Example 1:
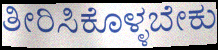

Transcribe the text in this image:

ತೀರಿಸಿಕೊಳ್ಳಬೇಕು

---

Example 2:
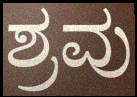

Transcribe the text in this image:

ಶ್ರವು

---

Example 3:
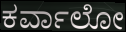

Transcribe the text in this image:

ಕರ್ವಾಲೋ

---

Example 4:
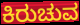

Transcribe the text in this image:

ಕಿರುಚುವ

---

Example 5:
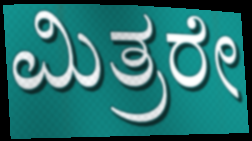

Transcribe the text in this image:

ಮಿತ್ರರೇ